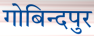
गोबिन्दपुर